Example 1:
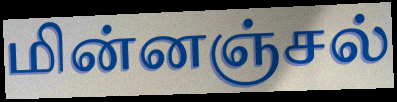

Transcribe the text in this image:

மின்னஞ்சல்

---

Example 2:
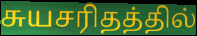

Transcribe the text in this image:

சுயசரிதத்தில்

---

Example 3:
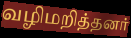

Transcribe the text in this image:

வழிமறித்தனர்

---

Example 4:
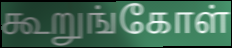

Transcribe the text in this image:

கூறுங்கோள்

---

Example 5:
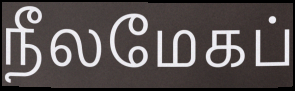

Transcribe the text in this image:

நீலமேகப்